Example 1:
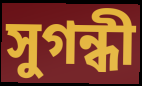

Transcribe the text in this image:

সুগন্ধী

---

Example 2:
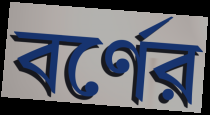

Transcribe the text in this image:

বর্ণের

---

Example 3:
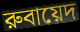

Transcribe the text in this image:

রুবায়েদ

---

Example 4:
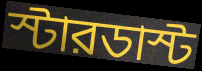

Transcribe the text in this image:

স্টারডাস্ট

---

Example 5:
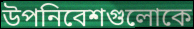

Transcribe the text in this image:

উপনিবেশগুলোকে